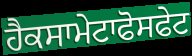
ਹੈਕਸਾਮੇਟਾਫੋਸਫੇਟ